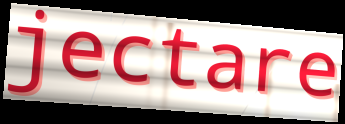
jectare